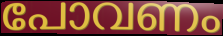
പോവണം